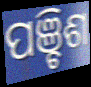
ପଞ୍ଚିଶ